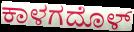
ಕಾಳಗದೊಳ್